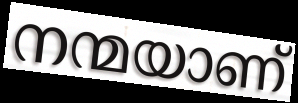
നന്മയാണ്